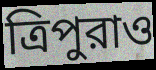
ত্রিপুরাও